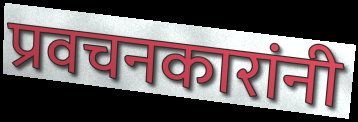
प्रवचनकारांनी